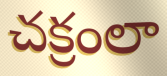
చక్రంలా